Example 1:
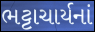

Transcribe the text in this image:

ભટ્ટાચાર્યનાં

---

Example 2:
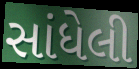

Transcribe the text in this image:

સાંધેલી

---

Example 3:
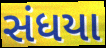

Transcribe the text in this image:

સંધયા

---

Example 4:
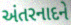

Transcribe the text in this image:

અંતરનાદને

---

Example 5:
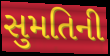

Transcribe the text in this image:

સુમતિની